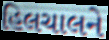
હિલચાલને